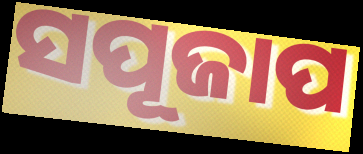
ସପୂଜାପ